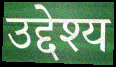
उद्देश्‍य